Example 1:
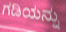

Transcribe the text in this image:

ಗಡಿಯನ್ನು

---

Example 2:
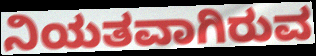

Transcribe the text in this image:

ನಿಯತವಾಗಿರುವ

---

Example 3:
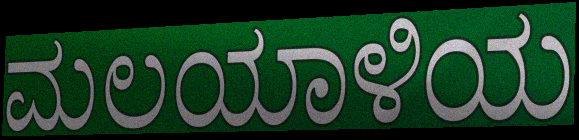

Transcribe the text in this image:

ಮಲಯಾಳಿಯ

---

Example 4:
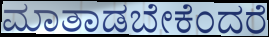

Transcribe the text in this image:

ಮಾತಾಡಬೇಕೆಂದರೆ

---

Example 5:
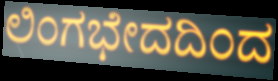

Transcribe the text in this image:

ಲಿಂಗಭೇದದಿಂದ